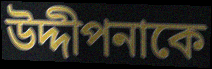
উদ্দীপনাকে